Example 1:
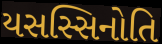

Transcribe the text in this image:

યસસ્સિનોતિ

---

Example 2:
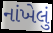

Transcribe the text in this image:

નાંખેલું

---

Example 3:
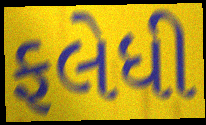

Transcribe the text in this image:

ફલેધી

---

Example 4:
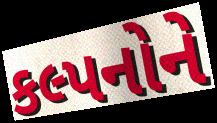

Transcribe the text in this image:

કલ્પનોને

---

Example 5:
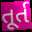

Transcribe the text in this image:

તૂર્ત